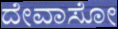
ದೇವಾಸೋ